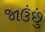
જાઉંછું